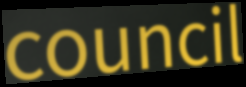
council